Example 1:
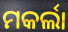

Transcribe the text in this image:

ମକର୍ଲା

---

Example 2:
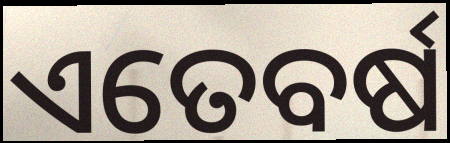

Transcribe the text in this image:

ଏତେବର୍ଷ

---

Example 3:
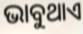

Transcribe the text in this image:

ଭାବୁଥାଏ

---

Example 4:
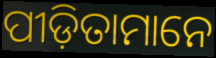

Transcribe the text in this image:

ପୀଡ଼ିତାମାନେ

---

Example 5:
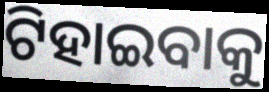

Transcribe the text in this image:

ଟିହାଇବାକୁ